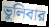
ভুলিবার